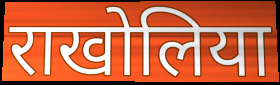
राखोलिया